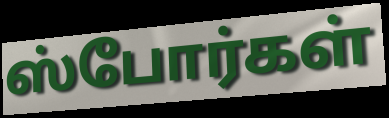
ஸ்போர்கள்